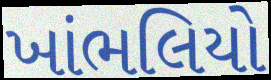
ખાંભલિયો